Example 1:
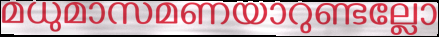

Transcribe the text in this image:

മധുമാസമണയാറുണ്ടല്ലോ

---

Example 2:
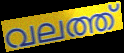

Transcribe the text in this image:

വലത്ത്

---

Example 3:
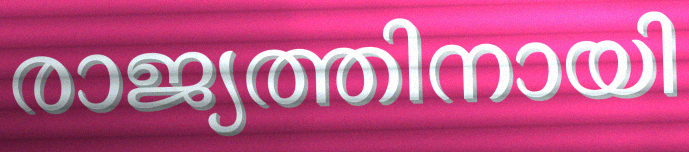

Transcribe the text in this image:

രാജ്യത്തിനായി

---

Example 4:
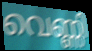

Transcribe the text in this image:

വെണ്ണി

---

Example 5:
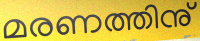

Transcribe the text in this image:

മരണത്തിനു്